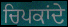
ਚਿਪਕਾਂਦੇ